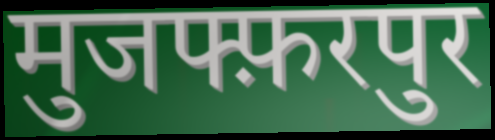
मुजफ्फ़रपुर